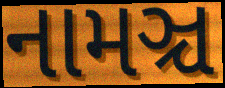
નામઞ્ચ